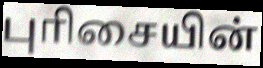
புரிசையின்